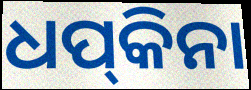
ଧପ୍‍କିନା